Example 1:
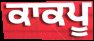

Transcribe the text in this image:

ਕਾਕਪੂ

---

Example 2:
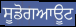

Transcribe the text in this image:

ਸੂਡੋਗਆਊਟ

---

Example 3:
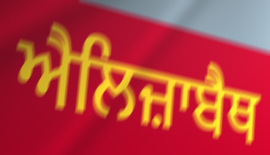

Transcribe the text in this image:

ਐਲਿਜ਼ਾਬੈਥ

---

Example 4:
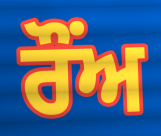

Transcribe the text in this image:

ਰੌਂਅ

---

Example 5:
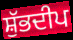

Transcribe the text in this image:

ਸ਼ੁੱਭਦੀਪ